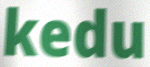
kedu